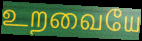
உறவையே